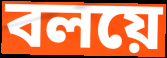
বলয়ে